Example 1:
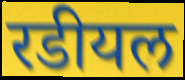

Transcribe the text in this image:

रडीयल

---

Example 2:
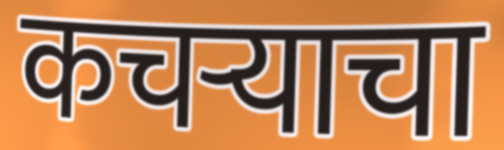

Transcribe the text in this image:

कचऱ्याचा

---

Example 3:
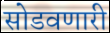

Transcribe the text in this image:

सोडवणारी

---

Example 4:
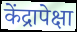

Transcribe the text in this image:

केंद्रापेक्षा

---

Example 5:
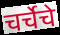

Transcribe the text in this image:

चर्चेचे